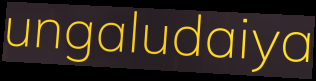
ungaludaiya